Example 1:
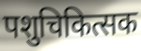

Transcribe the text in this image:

पशुचिकित्सक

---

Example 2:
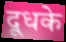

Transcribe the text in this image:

दूधके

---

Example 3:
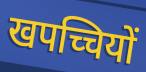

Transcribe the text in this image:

खपच्चियों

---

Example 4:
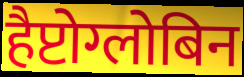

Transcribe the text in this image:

हैप्टोग्लोबिन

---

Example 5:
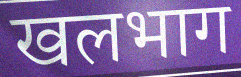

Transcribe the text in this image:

खलभाग